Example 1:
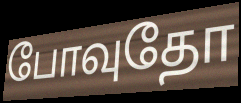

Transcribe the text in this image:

போவுதோ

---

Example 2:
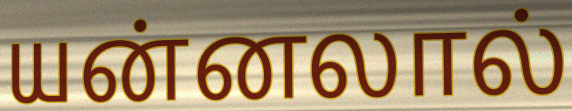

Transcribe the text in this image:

யன்னலால்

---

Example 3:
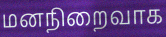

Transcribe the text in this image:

மனநிறைவாக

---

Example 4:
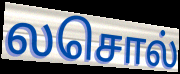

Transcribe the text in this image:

லசொல்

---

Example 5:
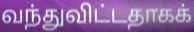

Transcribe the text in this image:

வந்துவிட்டதாகக்